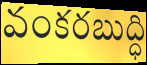
వంకరబుద్ధి